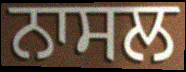
ਨਾਸਲ